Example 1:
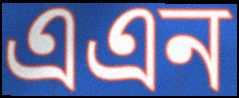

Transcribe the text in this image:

এএন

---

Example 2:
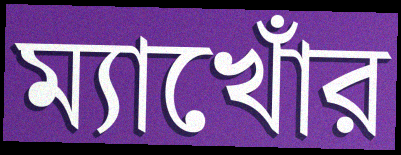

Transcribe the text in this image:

ম্যাখোঁর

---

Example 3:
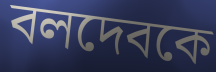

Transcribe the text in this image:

বলদেবকে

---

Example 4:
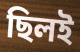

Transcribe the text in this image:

ছিলই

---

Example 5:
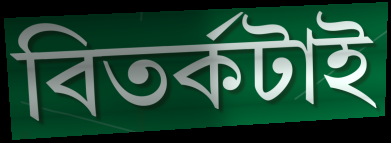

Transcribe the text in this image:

বিতর্কটাই